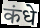
कंधे